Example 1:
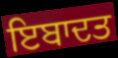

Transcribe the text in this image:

ਇਬਾਦਤ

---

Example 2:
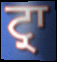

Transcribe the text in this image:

ਟ੍ਰਾ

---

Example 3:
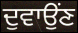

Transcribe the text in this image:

ਦੁਵਾਉਂਣ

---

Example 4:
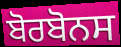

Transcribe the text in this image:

ਬੋਰਬੋਨਸ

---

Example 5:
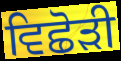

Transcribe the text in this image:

ਵਿਛੋੜੀ